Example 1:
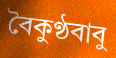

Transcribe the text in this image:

বৈকুণ্ঠবাবু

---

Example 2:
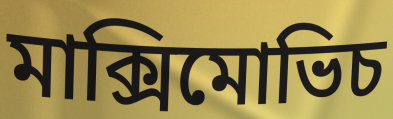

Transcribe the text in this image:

মাক্সিমোভিচ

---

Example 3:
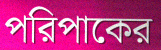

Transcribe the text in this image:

পরিপাকের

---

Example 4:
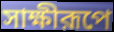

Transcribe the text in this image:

সাক্ষীরূপে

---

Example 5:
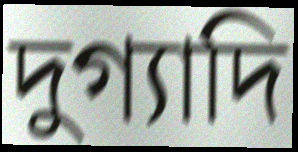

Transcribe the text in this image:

দুগ্যাদি